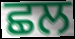
ਛਲ